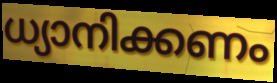
ധ്യാനിക്കണം